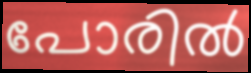
പോരിൽ